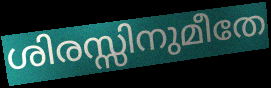
ശിരസ്സിനുമീതേ